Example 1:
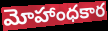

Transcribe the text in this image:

మోహాంధకార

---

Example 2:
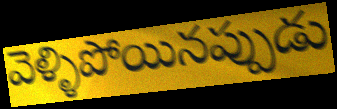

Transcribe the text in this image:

వెళ్ళిపోయినప్పుడు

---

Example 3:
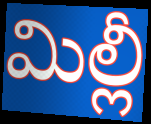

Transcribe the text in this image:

మిల్లీ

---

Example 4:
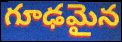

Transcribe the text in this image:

గూఢమైన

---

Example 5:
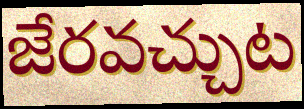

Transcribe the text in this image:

జేరవచ్చుట